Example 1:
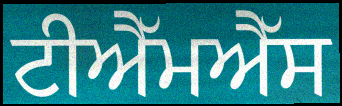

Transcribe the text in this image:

ਟੀਐੱਮਐੱਸ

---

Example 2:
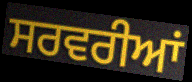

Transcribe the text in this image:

ਸਰਵਰੀਆਂ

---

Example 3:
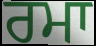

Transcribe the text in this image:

ਰਮਾ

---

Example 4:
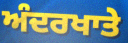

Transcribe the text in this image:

ਅੰਦਰਖਾਤੇ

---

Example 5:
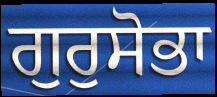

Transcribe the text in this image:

ਗੁਰੁਸੋਭਾ